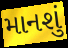
માનશું